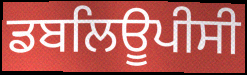
ਡਬਲਿਊਪੀਸੀ